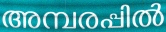
അമ്പരപ്പിൽ